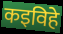
कइविहे